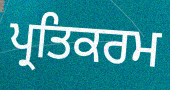
ਪ੍ਰਤਿਕਰਮ